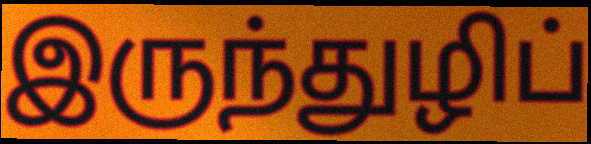
இருந்துழிப்